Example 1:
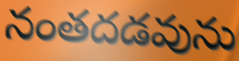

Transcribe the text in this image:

నంతదడవును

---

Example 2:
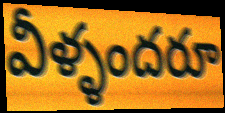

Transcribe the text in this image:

వీళ్ళందరూ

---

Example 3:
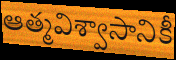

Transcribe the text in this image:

ఆత్మవిశ్వాసానికీ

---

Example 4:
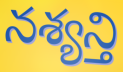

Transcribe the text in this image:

నశ్యన్తి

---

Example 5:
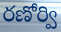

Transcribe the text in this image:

రణోర్వి